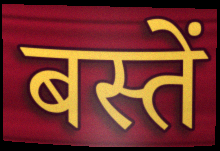
बस्तें